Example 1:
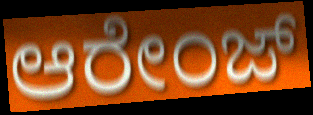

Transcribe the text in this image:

ಆರೇಂಜ್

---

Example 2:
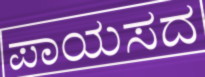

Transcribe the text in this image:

ಪಾಯಸದ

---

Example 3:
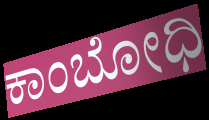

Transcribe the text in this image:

ಕಾಂಬೋಧಿ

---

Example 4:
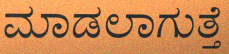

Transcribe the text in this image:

ಮಾಡಲಾಗುತ್ತೆ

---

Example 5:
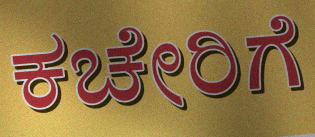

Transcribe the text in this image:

ಕಚೇರಿಗೆ